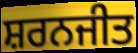
ਸ਼ਰਨਜੀਤ